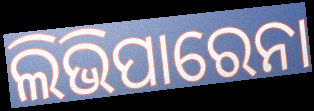
ଲିଭିପାରେନା